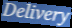
Delivery